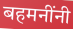
बहमनींनी